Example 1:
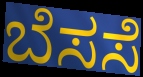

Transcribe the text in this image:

ಬೆಸಸೆ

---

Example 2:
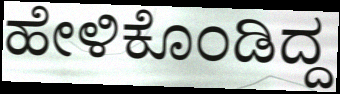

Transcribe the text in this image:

ಹೇಳಿಕೊಂಡಿದ್ದ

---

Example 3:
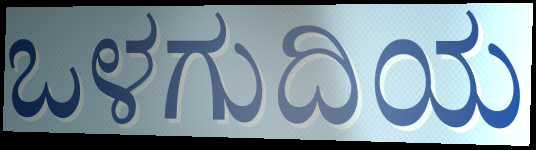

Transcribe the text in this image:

ಒಳಗುದಿಯ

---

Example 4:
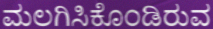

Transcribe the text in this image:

ಮಲಗಿಸಿಕೊಂಡಿರುವ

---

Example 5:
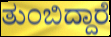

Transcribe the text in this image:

ತುಂಬಿದ್ದಾರೆ